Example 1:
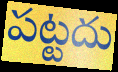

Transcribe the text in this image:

పట్టదు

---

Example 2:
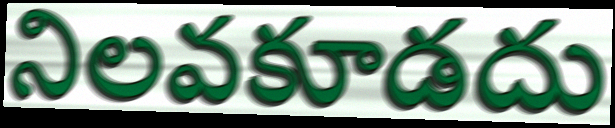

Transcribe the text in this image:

నిలవకూడదు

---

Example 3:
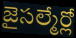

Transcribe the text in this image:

జైసల్మేర్లో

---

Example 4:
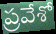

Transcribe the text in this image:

ప్రవేశో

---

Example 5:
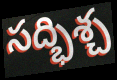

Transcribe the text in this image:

సద్భిశ్చ